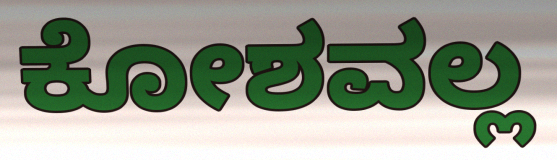
ಕೋಶವಲ್ಲ